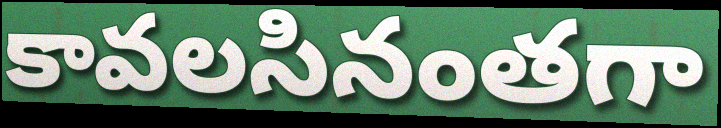
కావలసినంతగా